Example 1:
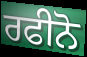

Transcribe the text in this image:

ਰਫੀਨੋ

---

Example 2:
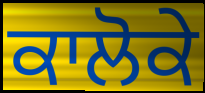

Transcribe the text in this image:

ਕਾਲੋਕੇ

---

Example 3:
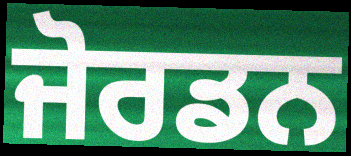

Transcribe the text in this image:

ਜੋਰਡਨ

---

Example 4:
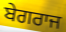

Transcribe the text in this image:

ਬੇਗਰਾਜ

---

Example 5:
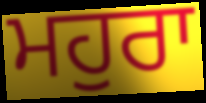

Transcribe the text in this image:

ਮਹੁਰਾ